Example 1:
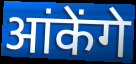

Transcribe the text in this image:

आंकेंगे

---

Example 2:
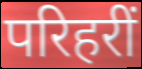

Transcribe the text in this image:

परिहरीं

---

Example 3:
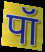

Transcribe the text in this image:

पॉ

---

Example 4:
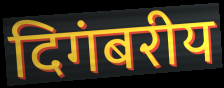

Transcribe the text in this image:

दिगंबरीय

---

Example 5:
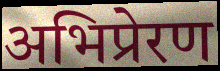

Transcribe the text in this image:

अभिप्रेरण